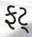
ફટ્